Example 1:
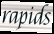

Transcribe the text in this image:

rapids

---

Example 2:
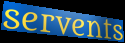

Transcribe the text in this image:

servents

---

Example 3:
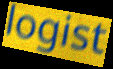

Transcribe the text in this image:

logist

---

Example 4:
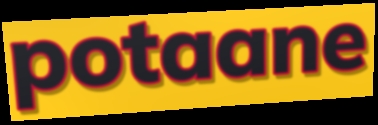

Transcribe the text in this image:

potaane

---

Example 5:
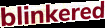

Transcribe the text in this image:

blinkered